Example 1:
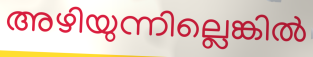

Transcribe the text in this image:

അഴിയുന്നില്ലെങ്കിൽ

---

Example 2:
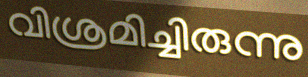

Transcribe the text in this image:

വിശ്രമിച്ചിരുന്നു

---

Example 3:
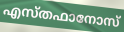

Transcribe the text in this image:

എസ്തഫാനോസ്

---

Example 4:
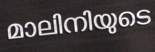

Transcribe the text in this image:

മാലിനിയുടെ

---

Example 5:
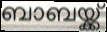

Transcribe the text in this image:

ബാബയ്ക്ക്